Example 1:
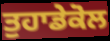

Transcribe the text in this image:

ਤੁਹਾਡੇਕੋਲ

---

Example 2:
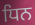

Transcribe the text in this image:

ਧਿਨ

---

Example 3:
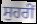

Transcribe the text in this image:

ਸੁਹਰੀਂ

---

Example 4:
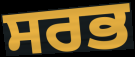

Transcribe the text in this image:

ਸਰਭ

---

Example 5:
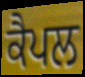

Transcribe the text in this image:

ਕੈਪਲ